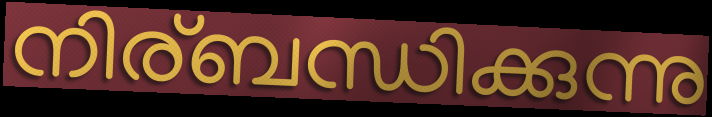
നിര്ബന്ധിക്കുന്നു